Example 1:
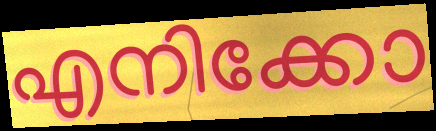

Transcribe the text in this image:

എനിക്കോ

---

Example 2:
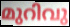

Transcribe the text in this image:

മുറിവു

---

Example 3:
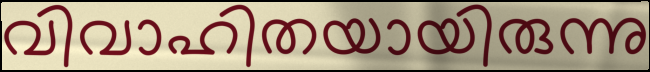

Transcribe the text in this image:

വിവാഹിതയായിരുന്നു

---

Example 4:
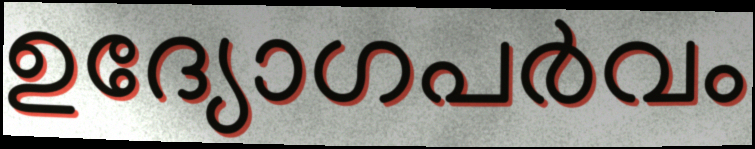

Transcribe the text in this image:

ഉദ്യോഗപർവം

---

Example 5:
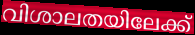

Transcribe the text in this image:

വിശാലതയിലേക്ക്